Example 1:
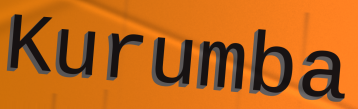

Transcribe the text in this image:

Kurumba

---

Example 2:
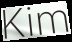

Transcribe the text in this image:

Kim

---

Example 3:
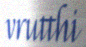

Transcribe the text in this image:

vrutthi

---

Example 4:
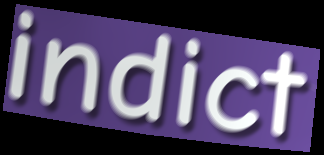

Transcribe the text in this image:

indict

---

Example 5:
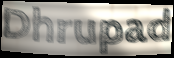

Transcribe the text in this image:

Dhrupad